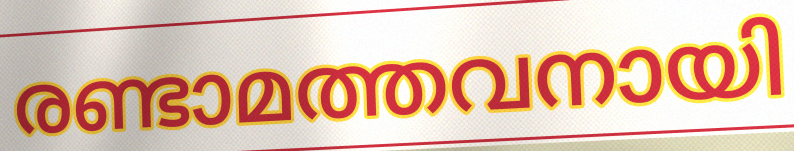
രണ്ടാമത്തവനായി